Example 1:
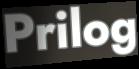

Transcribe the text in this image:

Prilog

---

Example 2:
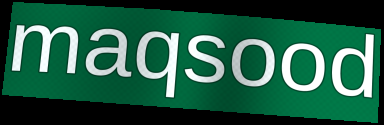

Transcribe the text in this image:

maqsood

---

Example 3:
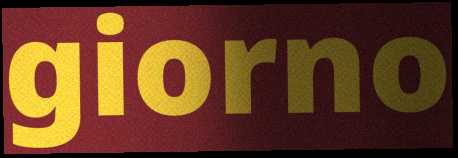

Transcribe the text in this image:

giorno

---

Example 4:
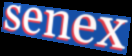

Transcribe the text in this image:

senex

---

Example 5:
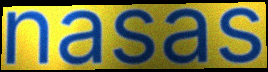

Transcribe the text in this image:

nasas